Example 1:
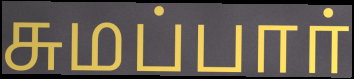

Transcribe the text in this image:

சுமப்பார்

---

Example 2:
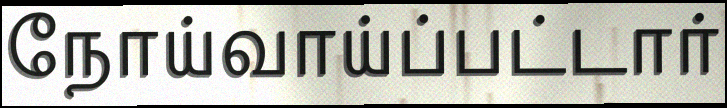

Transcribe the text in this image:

நோய்வாய்ப்பட்டார்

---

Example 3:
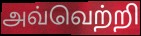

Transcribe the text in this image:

அவ்வெற்றி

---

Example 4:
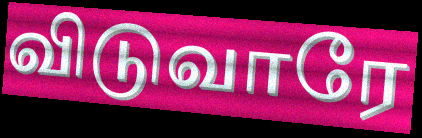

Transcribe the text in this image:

விடுவாரே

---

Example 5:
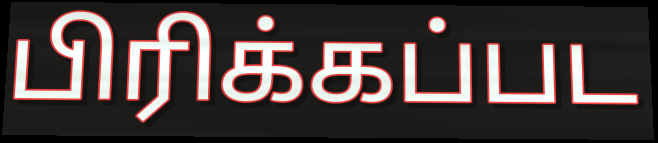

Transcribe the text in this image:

பிரிக்கப்பட